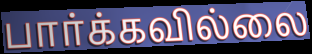
பார்க்கவில்லை